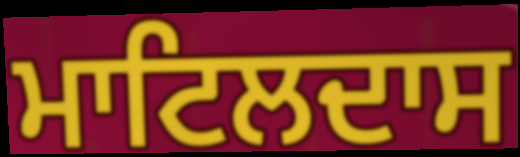
ਮਾਟਿਲਦਾਸ